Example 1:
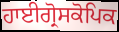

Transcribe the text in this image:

ਹਾਈਗ੍ਰੋਸਕੋਪਿਕ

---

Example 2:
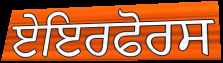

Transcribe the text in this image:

ਏਇਰਫੋਰਸ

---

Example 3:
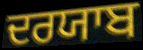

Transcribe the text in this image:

ਦਰਯਾਬ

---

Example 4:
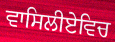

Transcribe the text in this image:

ਵਾਸਿਲੀਏਵਿਚ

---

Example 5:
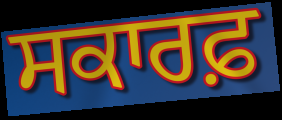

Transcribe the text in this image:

ਸਕਾਰਫ਼